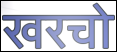
खरचो